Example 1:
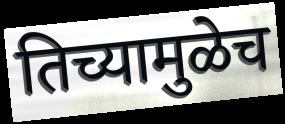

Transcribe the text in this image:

तिच्यामुळेच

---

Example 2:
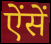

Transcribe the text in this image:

ऐंसें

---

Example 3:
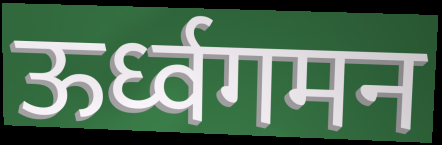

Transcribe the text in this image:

ऊर्ध्वगमन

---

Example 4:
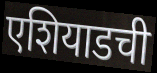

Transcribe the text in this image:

एशियाडची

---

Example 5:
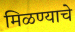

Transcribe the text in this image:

मिळण्याचे